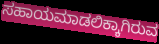
ಸಹಾಯಮಾಡಲಿಕ್ಕಾಗಿರುವ